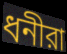
ধনীরা